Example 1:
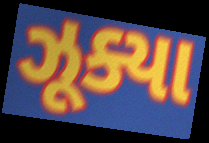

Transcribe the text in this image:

ઝૂક્યા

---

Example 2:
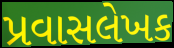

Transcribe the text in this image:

પ્રવાસલેખક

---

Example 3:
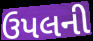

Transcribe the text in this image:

ઉપલની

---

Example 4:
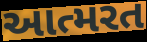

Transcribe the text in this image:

આત્મરત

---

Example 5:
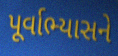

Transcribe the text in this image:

પૂર્વાભ્યાસને